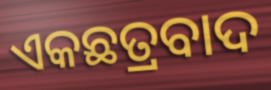
ଏକଛତ୍ରବାଦ